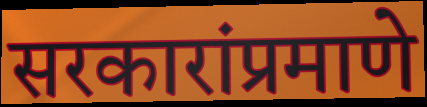
सरकारांप्रमाणे